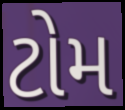
ટોમ